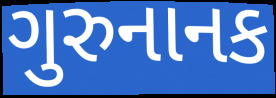
ગુરુનાનક